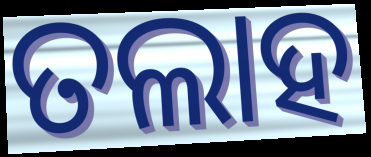
ତଲାହ